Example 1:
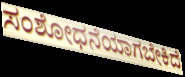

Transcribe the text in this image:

ಸಂಶೋಧನೆಯಾಗಬೇಕಿದೆ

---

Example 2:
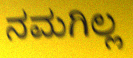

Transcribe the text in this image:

ನಮಗಿಲ್ಲ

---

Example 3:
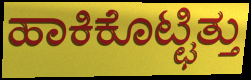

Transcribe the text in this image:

ಹಾಕಿಕೊಟ್ಟಿತ್ತು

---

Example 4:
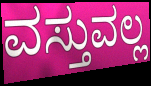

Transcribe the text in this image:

ವಸ್ತುವಲ್ಲ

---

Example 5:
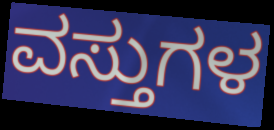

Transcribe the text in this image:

ವಸ್ತುಗಳ